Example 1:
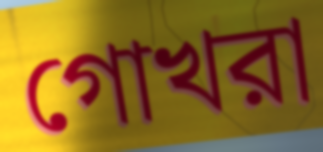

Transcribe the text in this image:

গোখরা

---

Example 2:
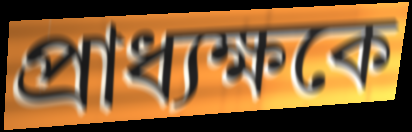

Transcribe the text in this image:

প্রাধ্যক্ষকে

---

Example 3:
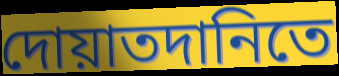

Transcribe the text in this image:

দোয়াতদানিতে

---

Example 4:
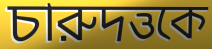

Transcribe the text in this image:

চারুদত্তকে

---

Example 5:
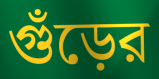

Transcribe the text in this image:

গুঁড়ের